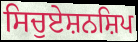
ਸਿਚੁਏਸ਼ਨਸ਼ਿਪ